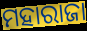
ମହାରାଜା